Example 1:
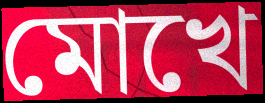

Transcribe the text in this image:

মোখে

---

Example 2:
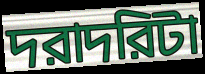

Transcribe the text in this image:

দরাদরিটা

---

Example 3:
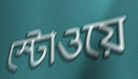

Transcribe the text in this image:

স্টোওয়ে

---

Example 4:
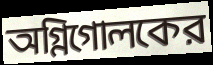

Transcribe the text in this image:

অগ্নিগোলকের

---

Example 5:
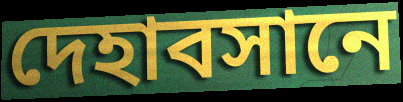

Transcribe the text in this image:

দেহাবসানে